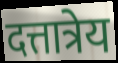
दत्तात्रेय